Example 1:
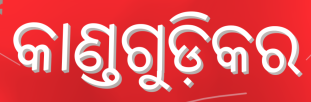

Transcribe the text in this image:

କାଣ୍ଡଗୁଡ଼ିକର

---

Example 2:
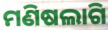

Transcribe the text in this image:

ମଣିଷଲାଗି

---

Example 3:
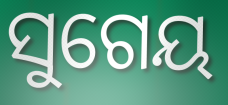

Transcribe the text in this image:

ସୁଗେୟ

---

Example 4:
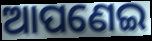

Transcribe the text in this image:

ଆପଣେଇ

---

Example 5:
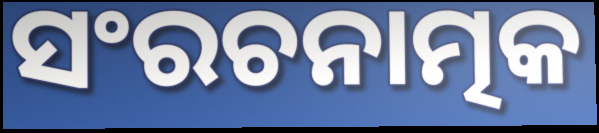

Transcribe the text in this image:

ସଂରଚନାତ୍ମକ